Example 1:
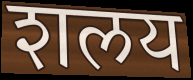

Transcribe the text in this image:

शलय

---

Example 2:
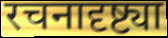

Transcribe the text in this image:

रचनादृष्ट्या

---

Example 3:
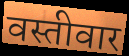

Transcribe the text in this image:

वस्तीवार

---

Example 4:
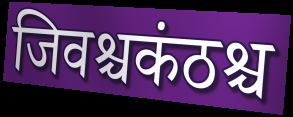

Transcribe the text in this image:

जिवश्चकंठश्च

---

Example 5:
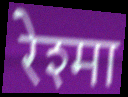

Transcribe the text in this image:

रेश्मा